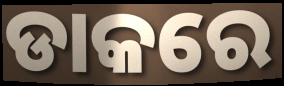
ଡାକରେ